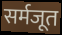
सर्मजूत